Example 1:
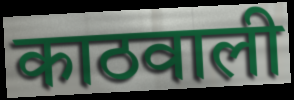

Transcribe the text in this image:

काठवाली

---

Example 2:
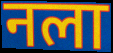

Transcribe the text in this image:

नला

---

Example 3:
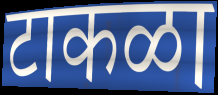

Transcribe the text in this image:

टाकळा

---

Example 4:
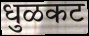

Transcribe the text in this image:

धुळकट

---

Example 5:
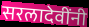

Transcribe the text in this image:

सरलादेवींनी